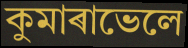
কুমাৰাভেলে